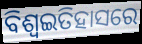
ବିଶ୍ଵଇତିହାସରେ